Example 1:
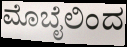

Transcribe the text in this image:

ಮೊಬೈಲಿಂದ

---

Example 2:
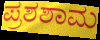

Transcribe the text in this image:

ಪ್ರಶಶಾಮ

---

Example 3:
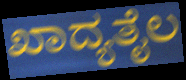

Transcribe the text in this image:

ಖಾದ್ಯತೈಲ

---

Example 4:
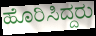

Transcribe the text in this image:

ಹೊರಿಸಿದ್ದರು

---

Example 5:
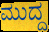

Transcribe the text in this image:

ಮುದ್ದ